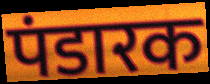
पंडारक